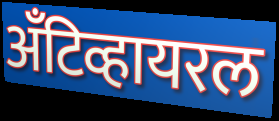
अँटिव्हायरल